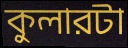
কুলারটা